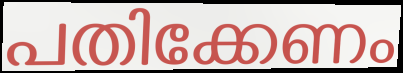
പതിക്കേണം